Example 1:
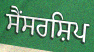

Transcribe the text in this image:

ਸੈਂਸਰਸ਼ਿਪ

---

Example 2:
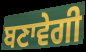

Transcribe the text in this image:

ਬਣਾਵੇਗੀ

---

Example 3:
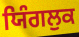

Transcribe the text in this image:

ਯਿੰਗਲੁਕ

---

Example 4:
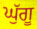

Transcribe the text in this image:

ਘੁੱਗੂ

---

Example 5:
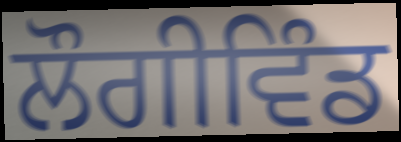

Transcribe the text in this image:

ਲੌਗੀਵਿੰਡ